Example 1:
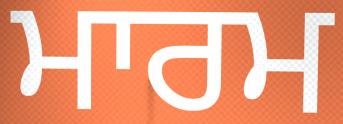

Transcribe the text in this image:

ਮਾਰਮ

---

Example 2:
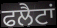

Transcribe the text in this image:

ਫਲੈਟਾਂ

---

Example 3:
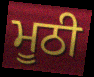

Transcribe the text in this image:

ਮੂਠੀ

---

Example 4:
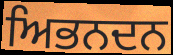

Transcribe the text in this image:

ਅਿਭਨਦਨ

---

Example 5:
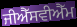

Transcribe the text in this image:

ਜੀਐੱਸਵੀਐੱਮ